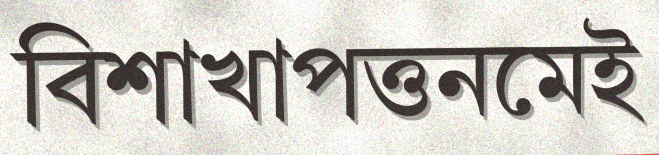
বিশাখাপত্তনমেই